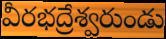
వీరభద్రేశ్వరుండు